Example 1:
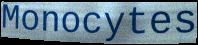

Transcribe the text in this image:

Monocytes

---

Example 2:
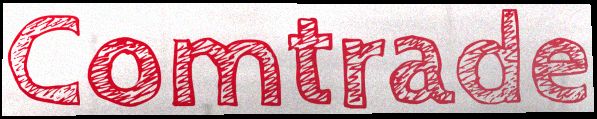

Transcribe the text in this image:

Comtrade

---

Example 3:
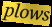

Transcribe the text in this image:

plows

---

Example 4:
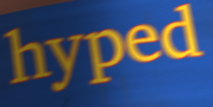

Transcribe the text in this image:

hyped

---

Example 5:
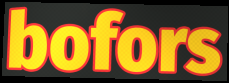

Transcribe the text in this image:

bofors